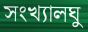
সংখ্যালঘু